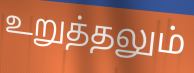
உறுத்தலும்